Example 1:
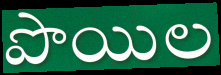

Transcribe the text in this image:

పొయిల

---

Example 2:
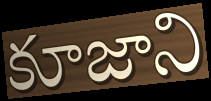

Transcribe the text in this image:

కూజాని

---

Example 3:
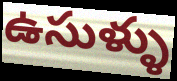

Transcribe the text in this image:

ఉసుళ్ళు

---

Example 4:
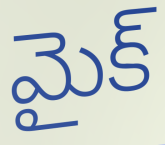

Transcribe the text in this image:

మైక్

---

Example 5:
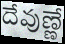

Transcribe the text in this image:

దేవుణ్ణే